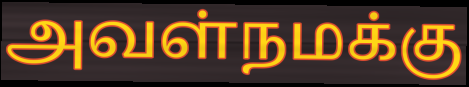
அவள்நமக்கு